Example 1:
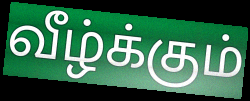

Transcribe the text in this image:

வீழ்க்கும்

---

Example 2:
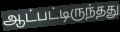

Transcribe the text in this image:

ஆட்பட்டிருந்தது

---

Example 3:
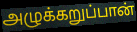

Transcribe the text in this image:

அழுக்கறுப்பான்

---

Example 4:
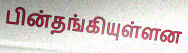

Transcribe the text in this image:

பின்தங்கியுள்ளன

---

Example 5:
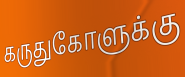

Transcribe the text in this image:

கருதுகோளுக்கு